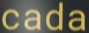
cada